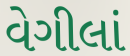
વેગીલાં